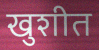
खुशीत